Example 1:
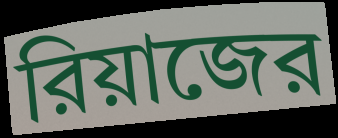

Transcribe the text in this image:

রিয়াজের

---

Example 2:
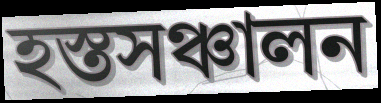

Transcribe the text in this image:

হস্তসঞ্চালন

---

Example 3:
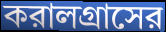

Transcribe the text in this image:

করালগ্রাসের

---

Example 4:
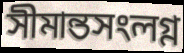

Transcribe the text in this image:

সীমান্তসংলগ্ন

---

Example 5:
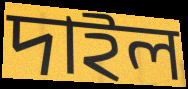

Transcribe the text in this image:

দাইল